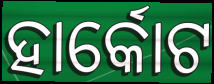
ହାର୍କୋଟ